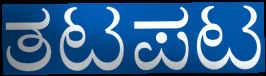
ತಟಪಟ